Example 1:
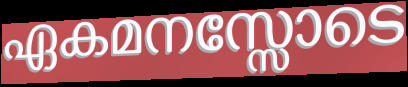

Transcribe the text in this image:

ഏകമനസ്സോടെ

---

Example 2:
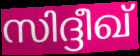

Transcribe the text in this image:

സിദ്ദീഖ്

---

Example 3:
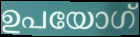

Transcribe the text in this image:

ഉപയോഗ്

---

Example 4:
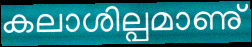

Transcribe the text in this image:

കലാശില്പമാണു്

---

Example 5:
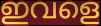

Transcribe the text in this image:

ഇവളെ